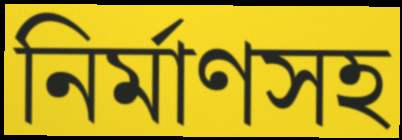
নির্মাণসহ